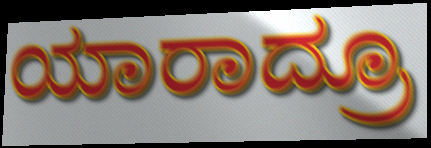
ಯಾರಾದ್ರೂ